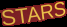
STARS